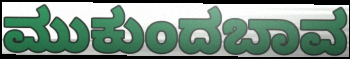
ಮುಕುಂದಬಾವ